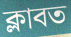
ক্লাবত